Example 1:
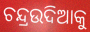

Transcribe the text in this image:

ଚନ୍ଦ୍ରଉଦିଆକୁ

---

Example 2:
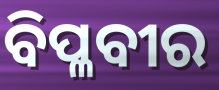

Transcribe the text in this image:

ବିପ୍ଳବୀର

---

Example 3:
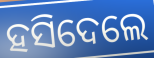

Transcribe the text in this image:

ହସିଦେଲେ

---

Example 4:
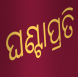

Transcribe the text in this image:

ଘଣ୍ଟାପ୍ରତି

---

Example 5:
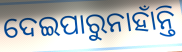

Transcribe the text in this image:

ଦେଇପାରୁନାହାଁନ୍ତି